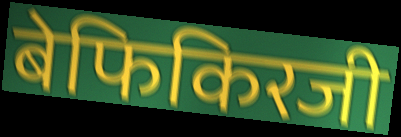
बेफिकिरजी